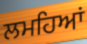
ਲਮਹਿਆਂ